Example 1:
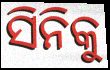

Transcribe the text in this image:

ସିନିକୁ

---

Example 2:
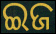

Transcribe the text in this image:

ଇଜ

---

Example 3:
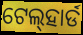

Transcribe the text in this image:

ଟେଲ୍‍ହାର୍ଡ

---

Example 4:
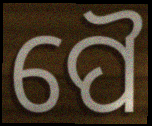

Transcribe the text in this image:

ପୈ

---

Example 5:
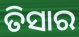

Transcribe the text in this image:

ତିସାର